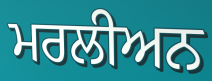
ਮਰਲੀਅਨ